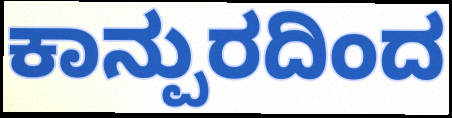
ಕಾನ್ಪುರದಿಂದ